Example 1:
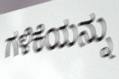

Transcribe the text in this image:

ಗಳಿಕೆಯನ್ನು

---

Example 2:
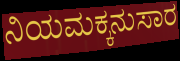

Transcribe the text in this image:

ನಿಯಮಕ್ಕನುಸಾರ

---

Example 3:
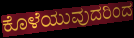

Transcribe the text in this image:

ಕೊಳೆಯುವುದರಿಂದ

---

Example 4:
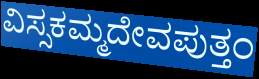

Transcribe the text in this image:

ವಿಸ್ಸಕಮ್ಮದೇವಪುತ್ತಂ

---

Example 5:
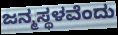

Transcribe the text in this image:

ಜನ್ಮಸ್ಥಳವೆಂದು